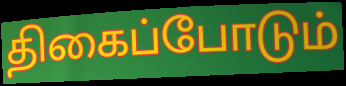
திகைப்போடும்